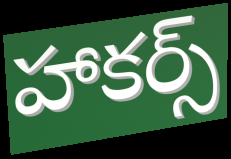
హాకర్స్